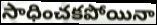
సాధించకపోయినా